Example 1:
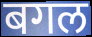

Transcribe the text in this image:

बगल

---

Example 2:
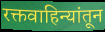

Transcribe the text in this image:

रक्तवाहिन्यांतून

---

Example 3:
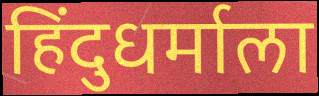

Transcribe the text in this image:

हिंदुधर्माला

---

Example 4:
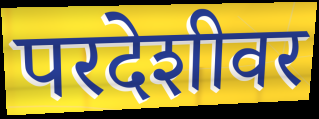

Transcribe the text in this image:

परदेशीवर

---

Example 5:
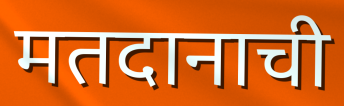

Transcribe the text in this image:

मतदानाची